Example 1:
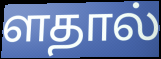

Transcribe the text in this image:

ளதால்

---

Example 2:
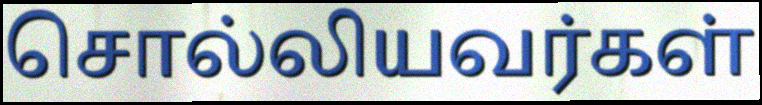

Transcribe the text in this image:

சொல்லியவர்கள்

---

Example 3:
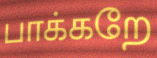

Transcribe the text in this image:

பாக்கறே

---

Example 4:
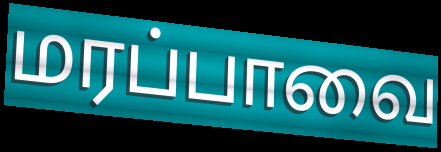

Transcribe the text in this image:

மரப்பாவை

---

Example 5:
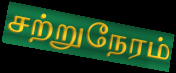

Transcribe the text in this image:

சற்றுநேரம்